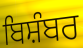
ਬਿਸ਼ੰਬਰ